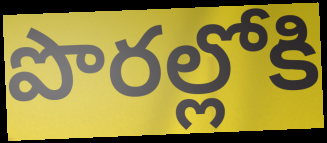
పొరల్లోకి